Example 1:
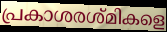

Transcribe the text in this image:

പ്രകാശരശ്മികളെ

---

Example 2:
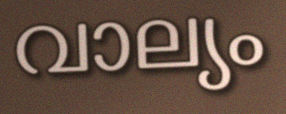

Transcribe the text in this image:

വാല്യം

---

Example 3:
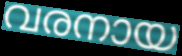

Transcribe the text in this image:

വരനായ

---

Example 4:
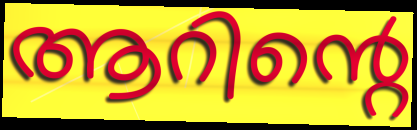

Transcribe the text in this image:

ആറിന്റെ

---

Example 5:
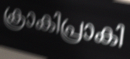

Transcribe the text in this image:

ക്രാകിപ്രാകി